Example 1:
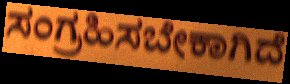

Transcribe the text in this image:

ಸಂಗ್ರಹಿಸಬೇಕಾಗಿದೆ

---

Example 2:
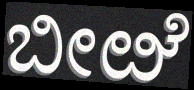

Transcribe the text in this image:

ಬೀೞೆ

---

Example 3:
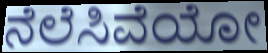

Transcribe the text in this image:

ನೆಲೆಸಿವೆಯೋ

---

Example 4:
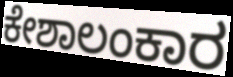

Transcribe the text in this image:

ಕೇಶಾಲಂಕಾರ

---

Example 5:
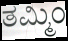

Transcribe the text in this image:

ತಮ್ಮಿಂ